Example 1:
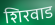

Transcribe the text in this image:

शिरवाड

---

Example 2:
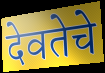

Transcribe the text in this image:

देवतेचे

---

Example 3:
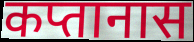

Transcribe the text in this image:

कप्तानास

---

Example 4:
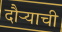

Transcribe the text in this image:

दौर्‍याची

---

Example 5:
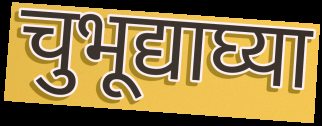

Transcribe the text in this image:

चुभूद्याघ्या